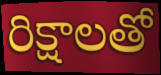
రిక్షాలతో